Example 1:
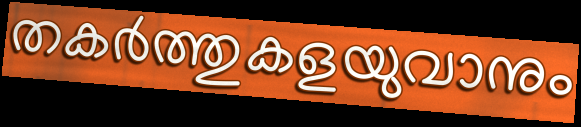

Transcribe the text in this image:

തകർത്തുകളയുവാനും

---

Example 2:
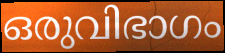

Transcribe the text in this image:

ഒരുവിഭാഗം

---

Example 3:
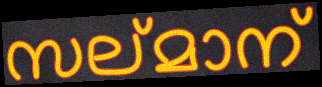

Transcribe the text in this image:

സല്മാന്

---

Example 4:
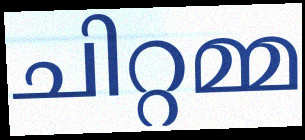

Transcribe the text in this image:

ചിറ്റമ്മ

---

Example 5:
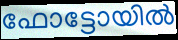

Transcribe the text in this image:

ഫോട്ടോയിൽ